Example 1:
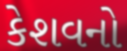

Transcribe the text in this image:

કેશવનો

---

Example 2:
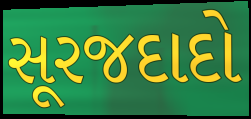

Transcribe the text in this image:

સૂરજદાદો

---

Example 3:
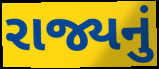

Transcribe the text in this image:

રાજ્યનું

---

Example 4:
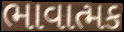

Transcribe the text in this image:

ભાવાત્મક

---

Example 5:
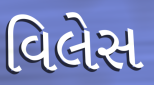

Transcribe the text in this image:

વિલેસ